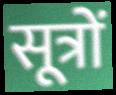
सूत्रों